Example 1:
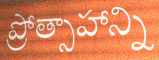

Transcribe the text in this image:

ప్రోత్సాహాన్ని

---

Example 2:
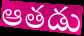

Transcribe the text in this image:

ఆతడు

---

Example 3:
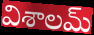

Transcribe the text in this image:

విశాలమ్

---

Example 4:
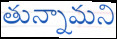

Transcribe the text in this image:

తున్నామని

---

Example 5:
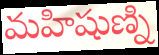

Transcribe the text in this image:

మహిషుణ్ని